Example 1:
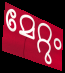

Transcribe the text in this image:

മേറ്റും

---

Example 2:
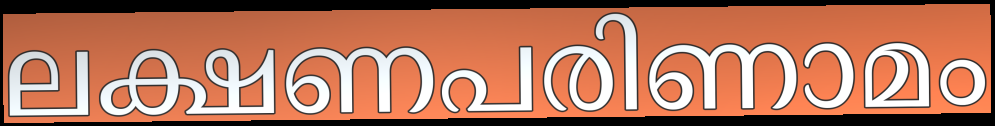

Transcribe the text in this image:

ലക്ഷണപരിണാമം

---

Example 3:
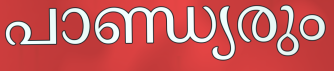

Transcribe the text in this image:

പാണ്ഡ്യരും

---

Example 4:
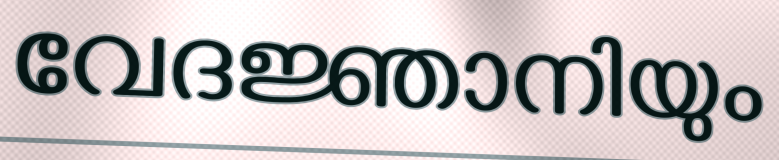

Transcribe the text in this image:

വേദജ്ഞാനിയും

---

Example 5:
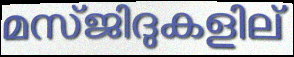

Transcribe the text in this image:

മസ്ജിദുകളില്